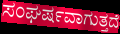
ಸಂಘರ್ಷವಾಗುತ್ತದೆ